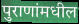
पुराणांमधील